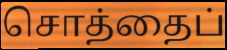
சொத்தைப்